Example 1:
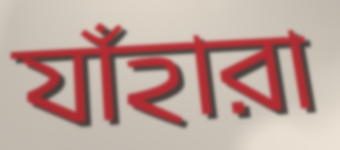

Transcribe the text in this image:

যাঁহারা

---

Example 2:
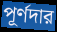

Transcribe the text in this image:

পূর্ণদার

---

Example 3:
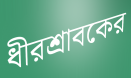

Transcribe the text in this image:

ধীরশ্রাবকের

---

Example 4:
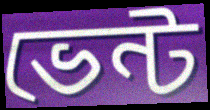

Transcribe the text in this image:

ভেন্ট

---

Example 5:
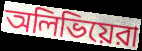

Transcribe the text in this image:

অলিভিয়েরা